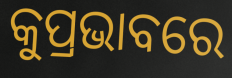
କୁପ୍ରଭାବରେ